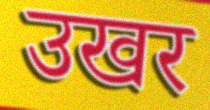
उखर